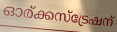
ഓര്ക്കസ്ട്രേഷന്